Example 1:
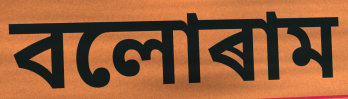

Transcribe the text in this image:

বলোৰাম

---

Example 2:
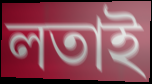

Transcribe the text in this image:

লতাই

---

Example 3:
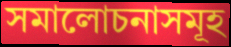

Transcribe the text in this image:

সমালোচনাসমূহ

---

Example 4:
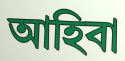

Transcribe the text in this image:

আহিবা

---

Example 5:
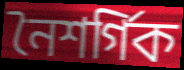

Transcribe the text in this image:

নৈশৰ্গিক